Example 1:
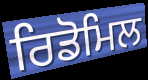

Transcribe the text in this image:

ਰਿਡੋਮਿਲ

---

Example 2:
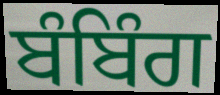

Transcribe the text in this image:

ਬੰਬਿੰਗ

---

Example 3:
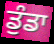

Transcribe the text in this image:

ਡੁੰਡਾ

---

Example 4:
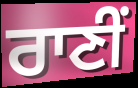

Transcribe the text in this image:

ਰਾਣੀਂ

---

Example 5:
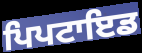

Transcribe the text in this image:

ਪਿਪਟਾਇਡ